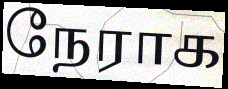
நேராக